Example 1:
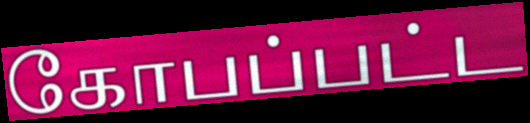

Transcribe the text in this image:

கோபப்பட்ட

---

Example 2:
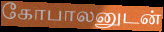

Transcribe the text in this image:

கோபாலனுடன்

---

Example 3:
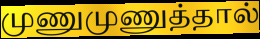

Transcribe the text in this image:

முணுமுணுத்தால்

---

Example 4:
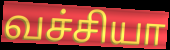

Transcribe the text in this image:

வச்சியா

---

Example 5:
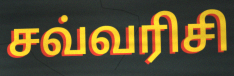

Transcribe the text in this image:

சவ்வரிசி